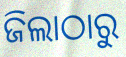
ଜିଲାଠାରୁ